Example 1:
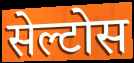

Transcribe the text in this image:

सेल्टोस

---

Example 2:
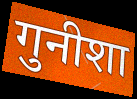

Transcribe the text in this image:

गुनीशा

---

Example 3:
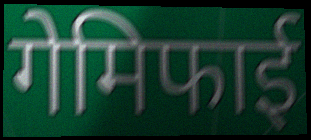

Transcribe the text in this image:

गेमिफाई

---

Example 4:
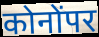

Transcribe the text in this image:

कोनोंपर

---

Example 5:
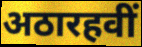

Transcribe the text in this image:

अठारहवीं